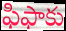
ఫిఫాకు